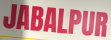
JABALPUR